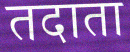
तदाता